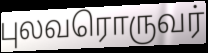
புலவரொருவர்